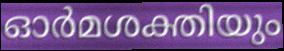
ഓർമശക്തിയും